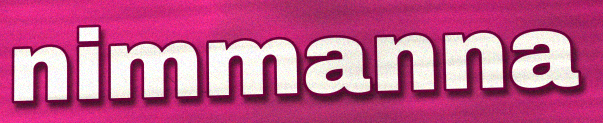
nimmanna